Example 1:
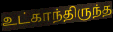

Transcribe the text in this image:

உட்காந்திருந்த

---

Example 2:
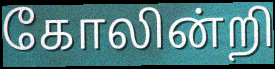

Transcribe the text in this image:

கோலின்றி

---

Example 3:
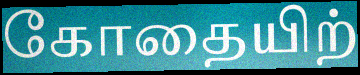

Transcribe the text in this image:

கோதையிற்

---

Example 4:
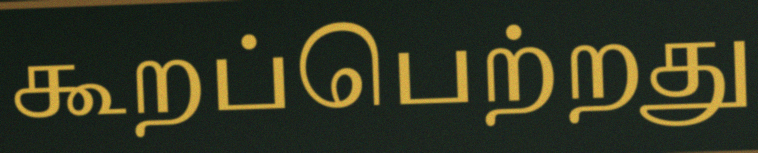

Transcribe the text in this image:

கூறப்பெற்றது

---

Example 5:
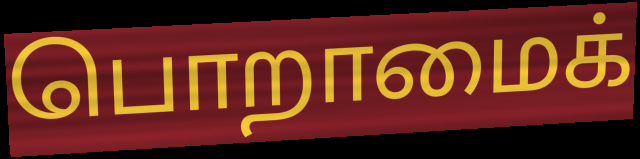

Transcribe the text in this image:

பொறாமைக்